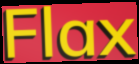
Flax